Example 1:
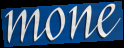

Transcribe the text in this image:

mone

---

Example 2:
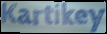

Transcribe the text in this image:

Kartikey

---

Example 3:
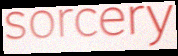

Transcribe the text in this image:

sorcery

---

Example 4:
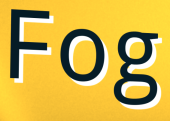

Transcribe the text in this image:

Fog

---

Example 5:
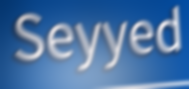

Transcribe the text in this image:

Seyyed